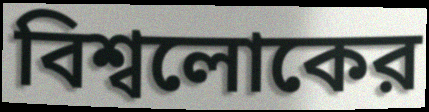
বিশ্বলোকের